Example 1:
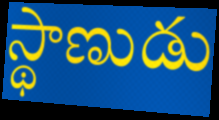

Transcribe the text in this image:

స్థాణుడు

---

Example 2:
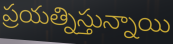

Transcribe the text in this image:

ప్రయత్నిస్తున్నాయి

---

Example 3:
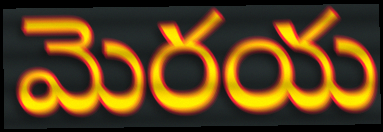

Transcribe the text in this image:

మెరయ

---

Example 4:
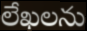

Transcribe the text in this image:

లేఖలను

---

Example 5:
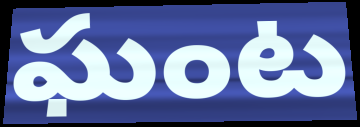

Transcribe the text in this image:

ఘంట